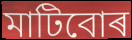
মাটিবোৰ